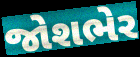
જોશભેર